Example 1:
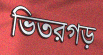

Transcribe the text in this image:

ভিতরগড়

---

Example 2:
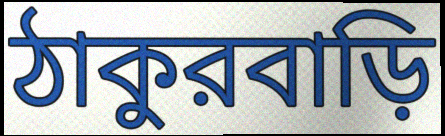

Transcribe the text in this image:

ঠাকুরবাড়ি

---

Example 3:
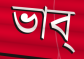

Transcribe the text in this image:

ভাব্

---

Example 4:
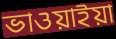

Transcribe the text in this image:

ভাওয়াইয়া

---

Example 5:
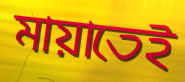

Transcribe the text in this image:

মায়াতেই